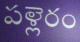
పళ్లెరం